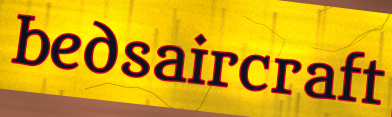
bedsaircraft